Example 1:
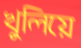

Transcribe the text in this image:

খুলিয়ে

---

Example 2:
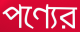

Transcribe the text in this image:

পণ্যের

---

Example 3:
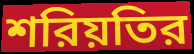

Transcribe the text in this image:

শরিয়তির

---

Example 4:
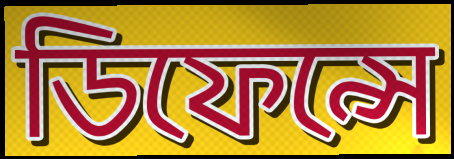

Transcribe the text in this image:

ডিফেন্সে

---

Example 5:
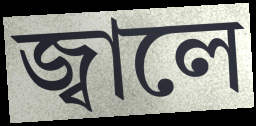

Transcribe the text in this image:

জ্বালে